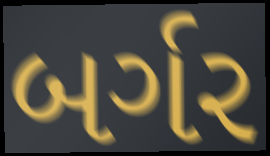
બર્ગર